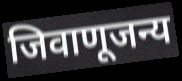
जिवाणूजन्य